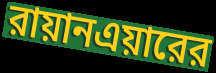
রায়ানএয়ারের